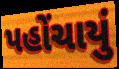
પહોંચાયું